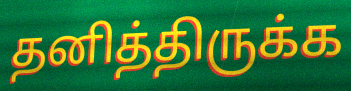
தனித்திருக்க